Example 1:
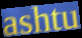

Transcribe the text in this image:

ashtu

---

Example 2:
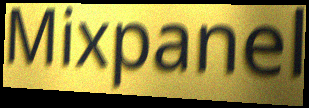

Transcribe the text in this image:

Mixpanel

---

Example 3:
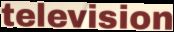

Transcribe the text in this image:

television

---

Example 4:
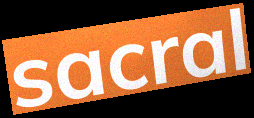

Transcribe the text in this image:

sacral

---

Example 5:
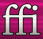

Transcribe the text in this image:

ffi